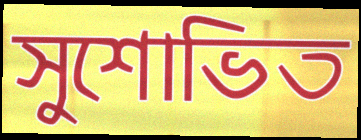
সুশোভিত